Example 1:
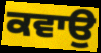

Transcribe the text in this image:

ਕਵਾਉ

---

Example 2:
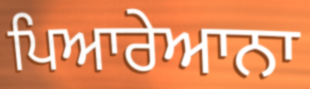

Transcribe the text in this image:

ਪਿਆਰੇਆਨਾ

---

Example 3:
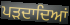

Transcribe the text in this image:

ਪੜਦਾਦਿਆਂ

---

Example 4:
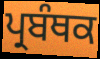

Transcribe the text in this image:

ਪ੍ਰਬੰਥਕ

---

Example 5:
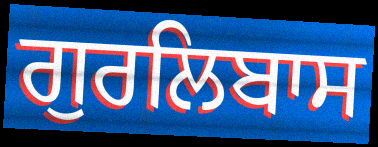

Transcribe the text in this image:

ਗੁਰਲਿਬਾਸ